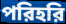
পরিহরি